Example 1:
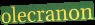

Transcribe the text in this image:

olecranon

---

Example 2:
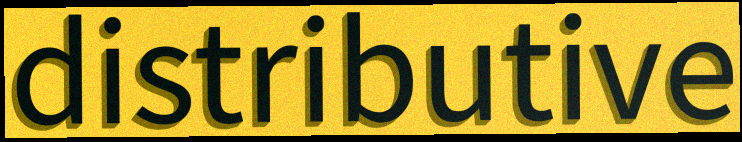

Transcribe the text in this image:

distributive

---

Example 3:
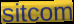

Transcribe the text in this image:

sitcom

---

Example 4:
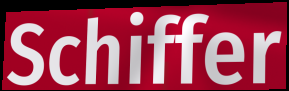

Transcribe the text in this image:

Schiffer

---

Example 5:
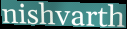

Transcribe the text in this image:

nishvarth